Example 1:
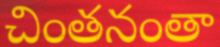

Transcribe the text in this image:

చింతనంతా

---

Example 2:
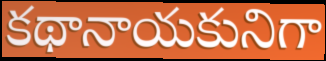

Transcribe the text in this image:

కథానాయకునిగా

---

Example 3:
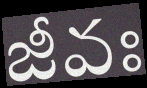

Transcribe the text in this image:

జీవః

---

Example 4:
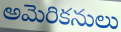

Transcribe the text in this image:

అమెరికనులు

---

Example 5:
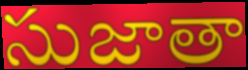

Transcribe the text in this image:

సుజాతా